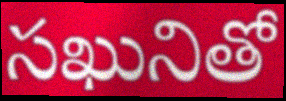
సఖునితో